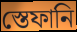
স্তেফানি